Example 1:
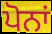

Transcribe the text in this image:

ਪੋਨਾਂ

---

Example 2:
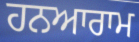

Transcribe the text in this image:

ਹਨਆਰਾਮ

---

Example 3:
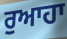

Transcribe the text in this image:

ਰੁਆਹਾ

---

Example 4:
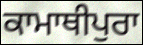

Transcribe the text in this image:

ਕਾਮਾਥੀਪੁਰਾ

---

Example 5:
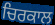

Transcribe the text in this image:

ਚਿਰਕਾਲ